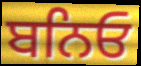
ਬਨਿਓ